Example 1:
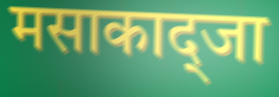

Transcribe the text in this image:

मसाकाद्जा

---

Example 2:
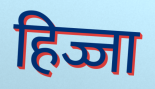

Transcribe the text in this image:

हिज्जा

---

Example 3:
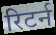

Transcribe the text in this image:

रिटर्न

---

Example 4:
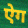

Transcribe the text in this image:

ऐग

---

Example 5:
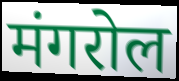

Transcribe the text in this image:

मंगरोल